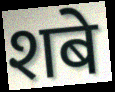
शबे